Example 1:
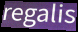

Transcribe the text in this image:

regalis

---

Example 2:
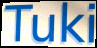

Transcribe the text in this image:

Tuki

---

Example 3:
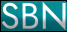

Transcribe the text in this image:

SBN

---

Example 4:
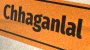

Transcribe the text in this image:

Chhaganlal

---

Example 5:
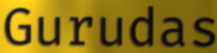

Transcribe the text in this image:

Gurudas